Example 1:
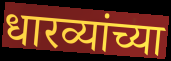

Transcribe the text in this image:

धारव्यांच्या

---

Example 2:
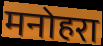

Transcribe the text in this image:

मनोहरा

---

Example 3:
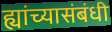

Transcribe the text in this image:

ह्यांच्यासंबंधी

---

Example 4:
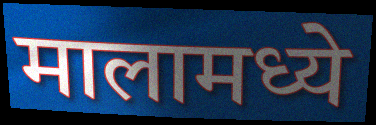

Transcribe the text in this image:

मालामध्ये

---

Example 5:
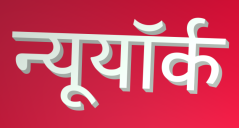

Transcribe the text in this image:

न्यूयॉर्क